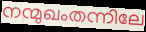
നന്മുഖംതന്നിലേ